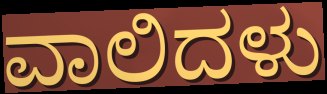
ವಾಲಿದಳು